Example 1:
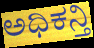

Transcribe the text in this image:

ಅಧಿಕನ್ತಿ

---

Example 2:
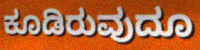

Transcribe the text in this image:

ಕೂಡಿರುವುದೂ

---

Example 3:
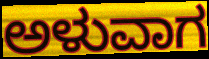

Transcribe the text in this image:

ಅಳುವಾಗ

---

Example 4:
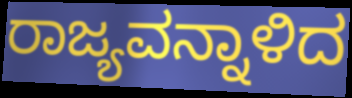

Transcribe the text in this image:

ರಾಜ್ಯವನ್ನಾಳಿದ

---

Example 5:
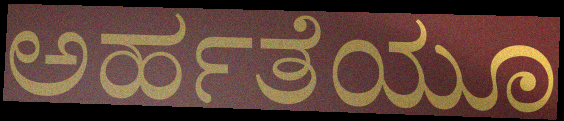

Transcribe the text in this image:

ಅರ್ಹತೆಯೂ